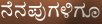
ನೆನಪುಗಳಿಗೂ